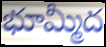
భూమ్మీద